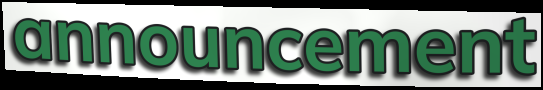
announcement